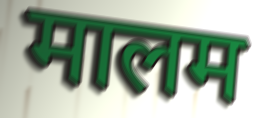
मालम